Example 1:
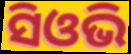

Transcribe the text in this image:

ସିଓଭି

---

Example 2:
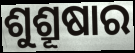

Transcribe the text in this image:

ଶୁଶ୍ରୂଷାର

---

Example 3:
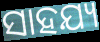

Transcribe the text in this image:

ସାହଯ୍ୟ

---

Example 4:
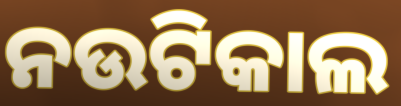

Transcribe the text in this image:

ନଉଟିକାଲ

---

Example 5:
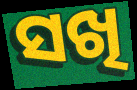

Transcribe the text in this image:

ସଖି